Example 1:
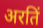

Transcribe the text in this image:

अरतिं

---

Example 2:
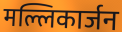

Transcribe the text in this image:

मल्लिकार्जन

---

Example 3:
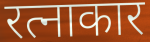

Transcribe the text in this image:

रत्नाकार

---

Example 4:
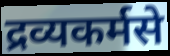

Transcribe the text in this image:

द्रव्यकर्मसे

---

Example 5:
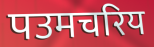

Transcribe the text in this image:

पउमचरिय